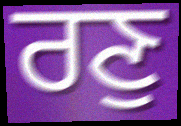
ਰਣੁ